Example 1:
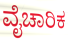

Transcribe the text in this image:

ವೈಚಾರಿಕ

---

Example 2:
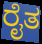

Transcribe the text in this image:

ರೈತ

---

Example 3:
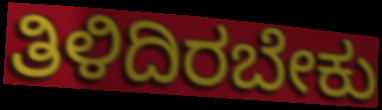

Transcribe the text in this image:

ತಿಳಿದಿರಬೇಕು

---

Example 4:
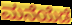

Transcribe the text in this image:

ಮನೆಯೆಡೆ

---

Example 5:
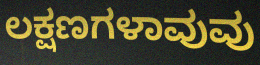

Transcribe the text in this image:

ಲಕ್ಷಣಗಳಾವುವು